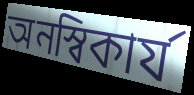
অনস্বিকার্য